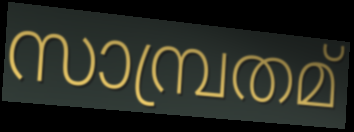
സാമ്പ്രതമ്